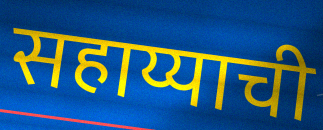
सहाय्याची